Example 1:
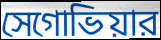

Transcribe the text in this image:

সেগোভিয়ার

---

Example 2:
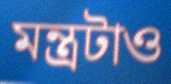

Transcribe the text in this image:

মন্ত্রটাও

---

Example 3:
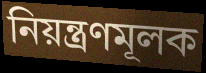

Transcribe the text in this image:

নিয়ন্ত্রণমূলক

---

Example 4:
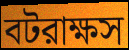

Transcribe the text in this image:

বটরাক্ষস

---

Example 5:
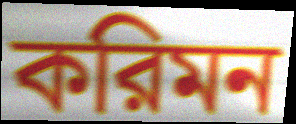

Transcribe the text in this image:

করিমন